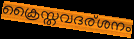
ക്രൈസ്തവദര്ശനം